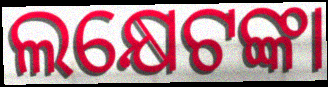
ଲକ୍ଷେଟଙ୍କା